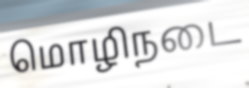
மொழிநடை